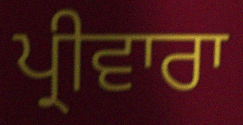
ਪ੍ਰੀਵਾਰਾ